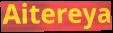
Aitereya